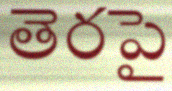
తెరపై